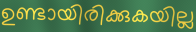
ഉണ്ടായിരിക്കുകയില്ല